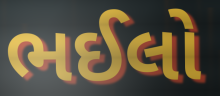
ભઈલો